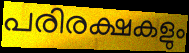
പരിരക്ഷകളും